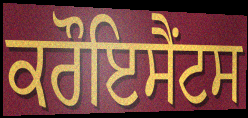
ਕਰੌਇਸੈਂਟਸ